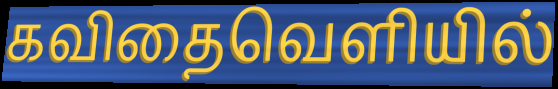
கவிதைவெளியில்